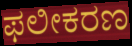
ಫಲೀಕರಣ